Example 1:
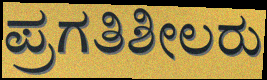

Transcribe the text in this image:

ಪ್ರಗತಿಶೀಲರು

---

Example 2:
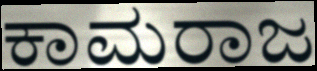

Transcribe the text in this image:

ಕಾಮರಾಜ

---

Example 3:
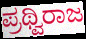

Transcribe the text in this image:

ಪ್ರಥ್ವಿರಾಜ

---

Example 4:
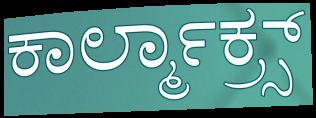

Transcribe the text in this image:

ಕಾರ್ಲ್ಮಾಕ್ರ್ಸ್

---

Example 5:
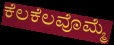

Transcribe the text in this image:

ಕೆಲಕೆಲವೊಮ್ಮೆ